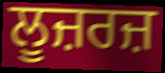
ਲੂਜ਼ਰਜ਼